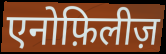
एनोफ़िलीज़